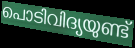
പൊടിവിദ്യയുണ്ട്